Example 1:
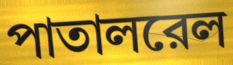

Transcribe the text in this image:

পাতালরেল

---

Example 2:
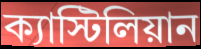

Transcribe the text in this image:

ক্যাস্টিলিয়ান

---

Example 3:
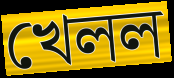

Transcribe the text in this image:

খেলল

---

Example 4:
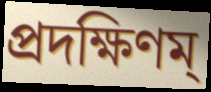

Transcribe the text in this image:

প্রদক্ষিণম্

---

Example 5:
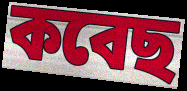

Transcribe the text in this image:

কবেছ